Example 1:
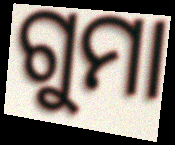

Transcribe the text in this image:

ଗୁମା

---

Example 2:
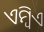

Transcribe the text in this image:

ଏମ୍ବିଏ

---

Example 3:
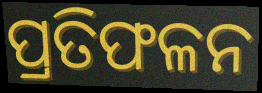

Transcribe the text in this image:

ପ୍ରତିଫଳନ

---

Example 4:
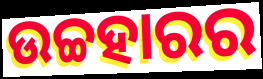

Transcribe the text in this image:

ଉଚ୍ଚହାରର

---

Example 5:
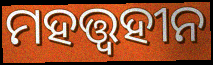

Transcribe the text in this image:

ମହତ୍ତ୍ବହୀନ